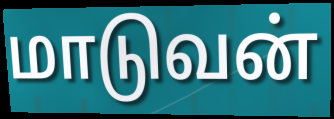
மாடுவன்